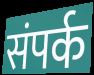
संपर्क